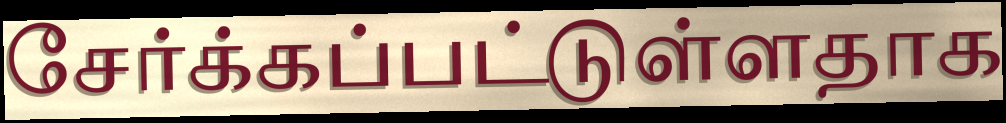
சேர்க்கப்பட்டுள்ளதாக